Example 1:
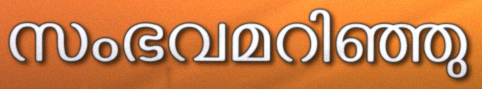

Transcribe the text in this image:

സംഭവമറിഞ്ഞു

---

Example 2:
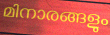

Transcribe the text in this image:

മിനാരങ്ങളും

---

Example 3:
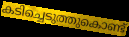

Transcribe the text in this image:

കടിച്ചെടുത്തുകൊണ്ട്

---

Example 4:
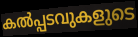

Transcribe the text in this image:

കൽപ്പടവുകളുടെ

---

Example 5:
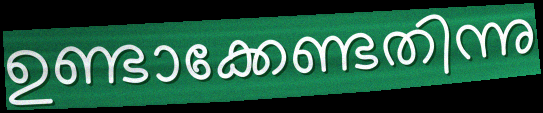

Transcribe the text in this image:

ഉണ്ടാക്കേണ്ടതിന്നു